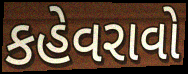
કહેવરાવો